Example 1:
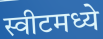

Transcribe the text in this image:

स्वीटमध्ये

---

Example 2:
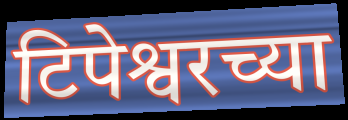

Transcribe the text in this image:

टिपेश्वरच्या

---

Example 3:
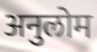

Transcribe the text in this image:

अनुलोम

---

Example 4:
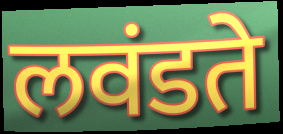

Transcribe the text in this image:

लवंडते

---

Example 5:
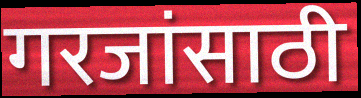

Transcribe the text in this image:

गरजांसाठी